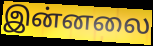
இன்னலை